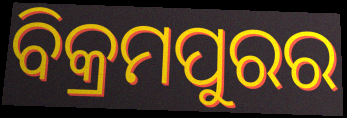
ବିକ୍ରମପୁରର